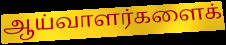
ஆய்வாளர்களைக்